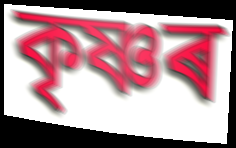
কৃষ্ণৰ